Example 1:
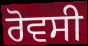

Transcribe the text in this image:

ਰੋਵਸੀ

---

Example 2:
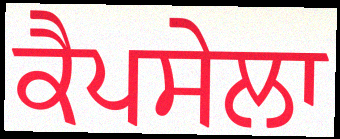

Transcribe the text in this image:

ਕੈਪਸੇਲਾ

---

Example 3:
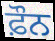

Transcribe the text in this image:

ਫ਼ੌਨ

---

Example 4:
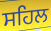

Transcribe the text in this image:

ਸਹਿਲ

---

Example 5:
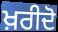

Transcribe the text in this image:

ਖ਼ਰੀਦੋ